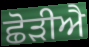
ਛੋੜੀਐ